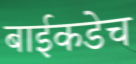
बाईकडेच